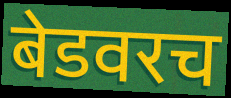
बेडवरच